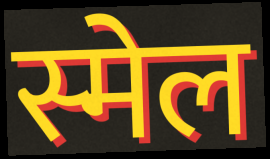
स्‍मेल